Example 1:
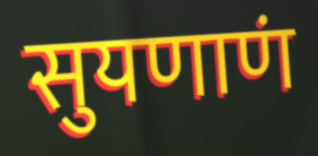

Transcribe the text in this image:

सुयणाणं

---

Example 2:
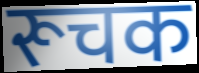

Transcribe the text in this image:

रूचक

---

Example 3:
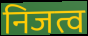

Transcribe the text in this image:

निजत्व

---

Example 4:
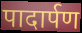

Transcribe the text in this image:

पादार्पण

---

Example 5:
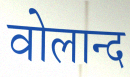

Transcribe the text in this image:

वोलान्द